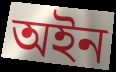
অইন